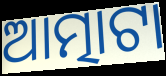
ଆତ୍ମାଟା